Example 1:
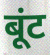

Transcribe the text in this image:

बूंट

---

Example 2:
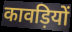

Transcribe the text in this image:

कावड़ियों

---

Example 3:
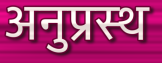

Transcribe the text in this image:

अनुप्रस्थ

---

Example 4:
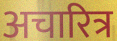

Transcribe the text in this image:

अचारित्र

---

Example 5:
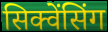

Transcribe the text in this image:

सिक्वेंसिंग